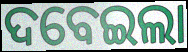
ଦବେଇଲା